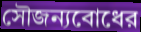
সৌজন্যবোধের